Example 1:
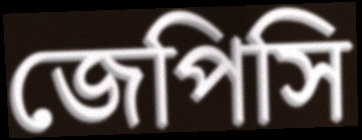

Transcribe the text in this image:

জেপিসি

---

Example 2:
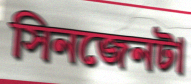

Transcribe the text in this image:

সিনজেনটা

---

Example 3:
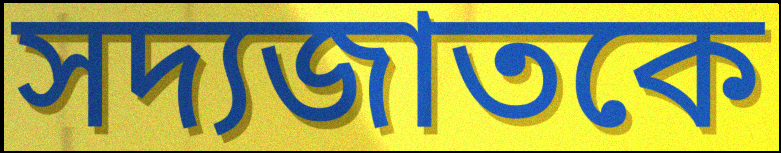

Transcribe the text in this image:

সদ্যজাতকে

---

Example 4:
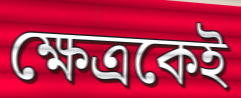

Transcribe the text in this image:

ক্ষেত্রকেই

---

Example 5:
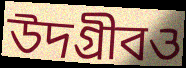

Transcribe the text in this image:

উদগ্রীবও